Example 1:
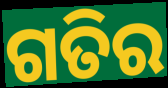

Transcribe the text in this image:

ଗତିର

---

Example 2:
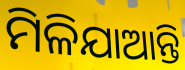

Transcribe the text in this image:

ମିଳିଯାଆନ୍ତି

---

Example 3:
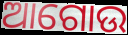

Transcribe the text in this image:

ଆଗୋଉ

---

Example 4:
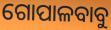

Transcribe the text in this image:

ଗୋପାଳବାବୁ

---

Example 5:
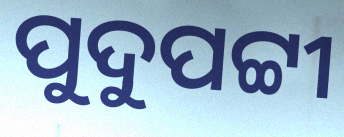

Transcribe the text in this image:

ପୁଦୁପଟ୍ଟୀ